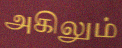
அகிலும்